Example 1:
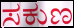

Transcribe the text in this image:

ಸಕುಣ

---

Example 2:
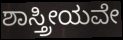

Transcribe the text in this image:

ಶಾಸ್ತ್ರೀಯವೇ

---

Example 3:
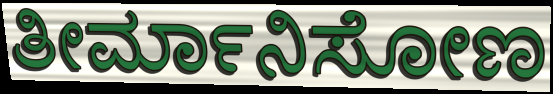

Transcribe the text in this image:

ತೀರ್ಮಾನಿಸೋಣ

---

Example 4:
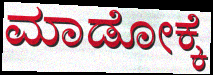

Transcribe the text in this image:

ಮಾಡೋಕ್ಕೆ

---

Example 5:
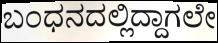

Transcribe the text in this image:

ಬಂಧನದಲ್ಲಿದ್ದಾಗಲೇ